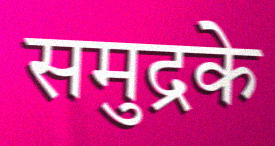
समुद्रके